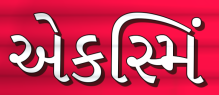
એકસ્મિં